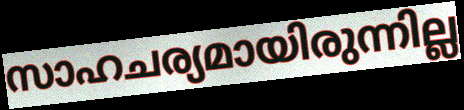
സാഹചര്യമായിരുന്നില്ല